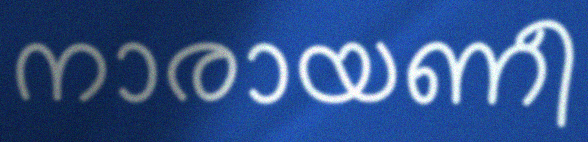
നാരായണീ